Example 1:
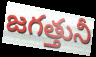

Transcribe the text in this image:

జగత్తునీ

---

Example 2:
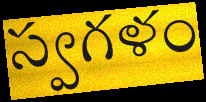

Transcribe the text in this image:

స్వగళం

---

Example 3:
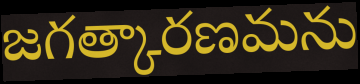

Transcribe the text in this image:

జగత్కారణమను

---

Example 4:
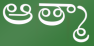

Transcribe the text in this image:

ఆత్మా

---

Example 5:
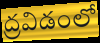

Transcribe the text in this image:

ద్రవిడంలో